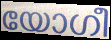
യോഗീ